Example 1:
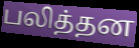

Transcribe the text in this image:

பலித்தன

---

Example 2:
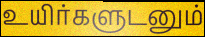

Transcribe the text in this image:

உயிர்களுடனும்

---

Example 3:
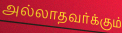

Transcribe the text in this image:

அல்லாதவர்க்கும்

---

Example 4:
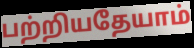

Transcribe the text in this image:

பற்றியதேயாம்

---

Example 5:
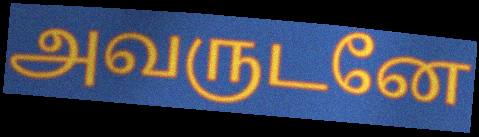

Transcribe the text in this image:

அவருடனே